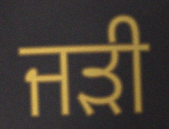
ਜੜੀ